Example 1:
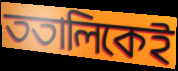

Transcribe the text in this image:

ততালিকেই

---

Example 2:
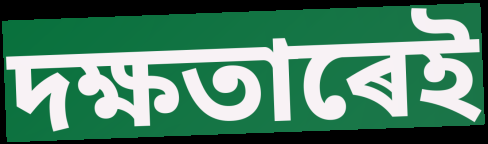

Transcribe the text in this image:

দক্ষতাৰেই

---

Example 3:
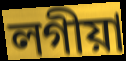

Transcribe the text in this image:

লগীয়া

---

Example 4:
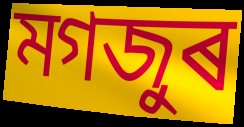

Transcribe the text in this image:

মগজুৰ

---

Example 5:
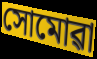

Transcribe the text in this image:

সোমোৱা